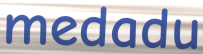
medadu